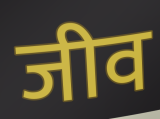
जीव